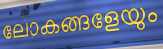
ലോകങ്ങളേയും